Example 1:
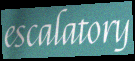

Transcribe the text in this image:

escalatory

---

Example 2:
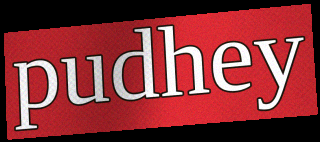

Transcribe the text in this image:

pudhey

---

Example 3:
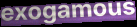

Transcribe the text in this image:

exogamous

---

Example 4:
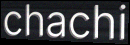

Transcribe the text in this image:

chachi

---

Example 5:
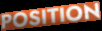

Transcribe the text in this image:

POSITION